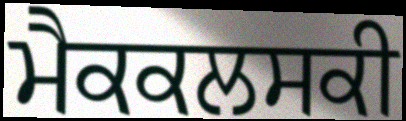
ਮੈਕਕਲਸਕੀ